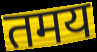
तमय